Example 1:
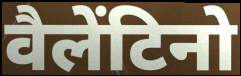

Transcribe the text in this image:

वैलेंटिनो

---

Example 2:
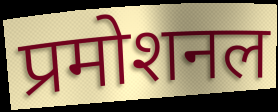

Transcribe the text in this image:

प्रमोशनल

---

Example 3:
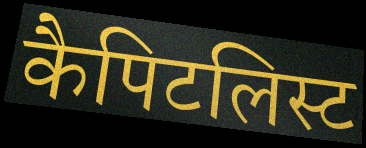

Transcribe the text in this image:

कैपिटलिस्ट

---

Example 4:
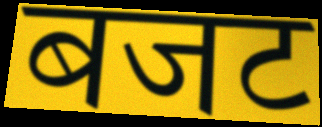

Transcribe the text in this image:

बजट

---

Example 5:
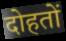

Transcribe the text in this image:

दोहतों